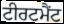
ਟੀਰਟਮੈਂਟ